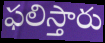
ఫలిస్తారు